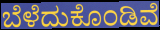
ಬೆಳೆದುಕೊಂಡಿವೆ